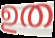
ഉത